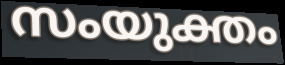
സംയുക്തം